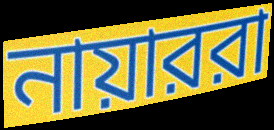
নায়াররা